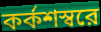
কর্কশস্বরে